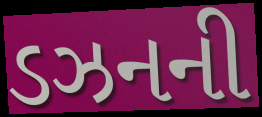
ડઝનની